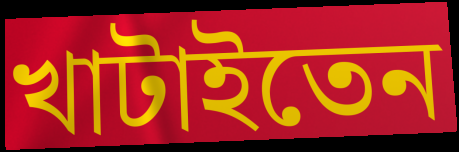
খাটাইতেন